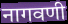
नागवणी